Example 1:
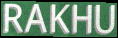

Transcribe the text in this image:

RAKHU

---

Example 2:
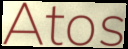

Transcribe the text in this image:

Atos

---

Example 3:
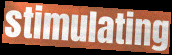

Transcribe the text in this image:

stimulating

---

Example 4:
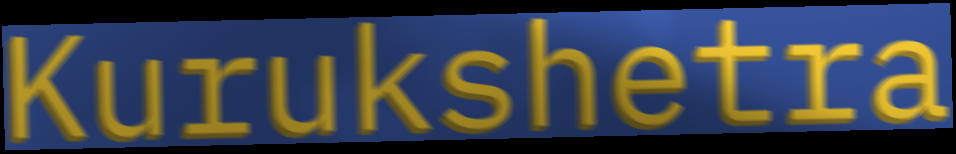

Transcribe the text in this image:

Kurukshetra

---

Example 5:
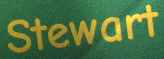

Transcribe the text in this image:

Stewart